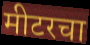
मीटरचा